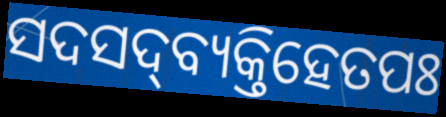
ସଦସଦ୍‌ବ୍ୟକ୍ତିହେତପଃ